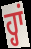
ਹ੍ਹਾਂ